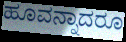
ಹೂವನ್ನಾದರೂ